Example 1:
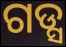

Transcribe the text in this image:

ଗଡ୍ସ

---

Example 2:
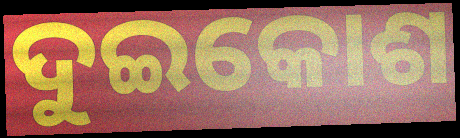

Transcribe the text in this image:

ଦୁଇକୋଶ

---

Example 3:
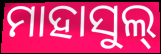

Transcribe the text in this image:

ମାହାସୁଲ୍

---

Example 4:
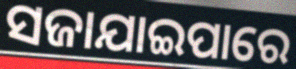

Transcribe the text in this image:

ସଜାଯାଇପାରେ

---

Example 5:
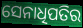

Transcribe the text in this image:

ସେନାଧିପତିର